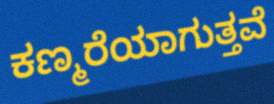
ಕಣ್ಮರೆಯಾಗುತ್ತವೆ